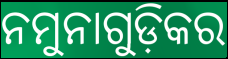
ନମୁନାଗୁଡ଼ିକର